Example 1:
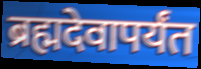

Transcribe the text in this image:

ब्रह्मदेवापर्यंत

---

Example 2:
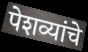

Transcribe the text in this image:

पेशव्यांचे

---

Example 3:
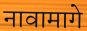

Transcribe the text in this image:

नावामागे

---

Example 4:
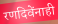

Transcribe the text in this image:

रणदिवेंनाही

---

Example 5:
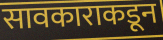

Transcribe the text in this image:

सावकाराकडून